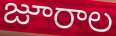
జూరాల